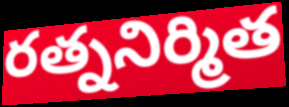
రత్ననిర్మిత